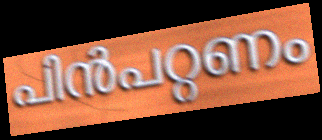
പിൻപറ്റണം